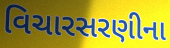
વિચારસરણીના